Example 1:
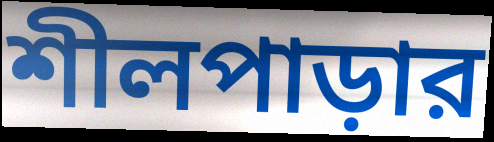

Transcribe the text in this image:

শীলপাড়ার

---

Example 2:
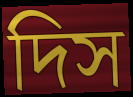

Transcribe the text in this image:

দিস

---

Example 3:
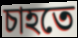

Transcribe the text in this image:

চাহতে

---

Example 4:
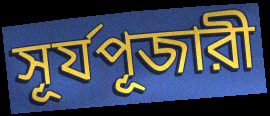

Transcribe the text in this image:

সূর্যপূজারী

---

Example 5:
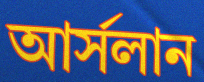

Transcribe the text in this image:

আর্সলান